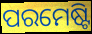
ପରମେଷ୍ଟି